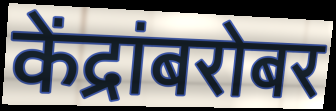
केंद्रांबरोबर